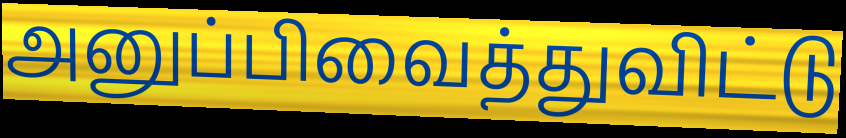
அனுப்பிவைத்துவிட்டு